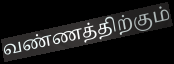
வண்ணத்திற்கும்